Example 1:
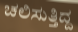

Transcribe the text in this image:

ಚಲಿಸುತ್ತಿದ್ದ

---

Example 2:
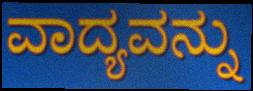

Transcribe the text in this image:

ವಾದ್ಯವನ್ನು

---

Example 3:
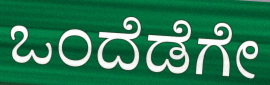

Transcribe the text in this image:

ಒಂದೆಡೆಗೇ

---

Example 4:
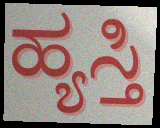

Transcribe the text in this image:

ಹ್ಯಸ್ತಿ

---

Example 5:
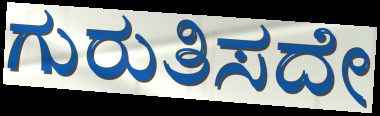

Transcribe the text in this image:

ಗುರುತಿಸದೇ